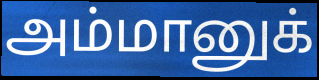
அம்மானுக்